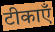
टीकाएँ